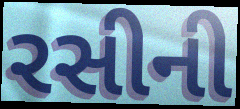
રસીની